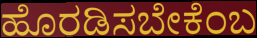
ಹೊರಡಿಸಬೇಕೆಂಬ